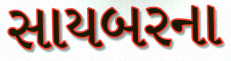
સાયબરના